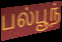
பல்பூந்